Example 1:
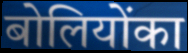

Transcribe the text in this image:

बोलियोंका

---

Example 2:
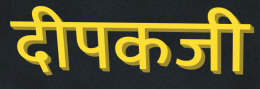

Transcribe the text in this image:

दीपकजी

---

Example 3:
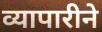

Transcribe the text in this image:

व्यापारीने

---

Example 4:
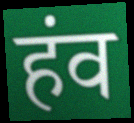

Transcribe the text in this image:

हंव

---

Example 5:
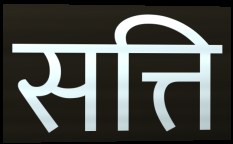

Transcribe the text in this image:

सत्ति